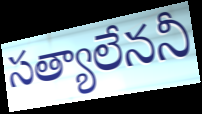
సత్యాలేననీ